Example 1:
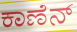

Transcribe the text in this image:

ಕಾಣೆನ್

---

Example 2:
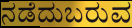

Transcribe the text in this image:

ನಡೆದುಬರುವ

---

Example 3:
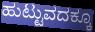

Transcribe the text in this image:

ಹುಟ್ಟುವದಕ್ಕೂ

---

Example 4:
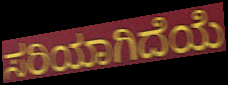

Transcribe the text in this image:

ಸರಿಯಾಗಿದೆಯೆ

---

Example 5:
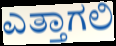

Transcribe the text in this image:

ಎತ್ತಾಗಲಿ